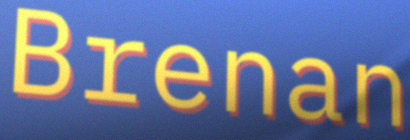
Brenan